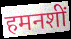
हमनशीं